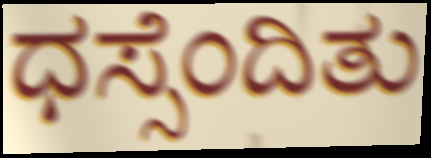
ಧಸ್ಸೆಂದಿತು